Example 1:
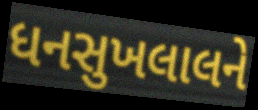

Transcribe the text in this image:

ધનસુખલાલને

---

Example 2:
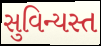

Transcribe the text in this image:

સુવિન્યસ્ત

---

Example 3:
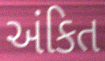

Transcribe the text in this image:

અંકિત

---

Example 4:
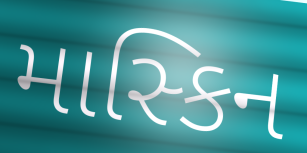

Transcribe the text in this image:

માસ્કિન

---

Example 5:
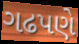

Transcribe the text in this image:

ગઢપણે